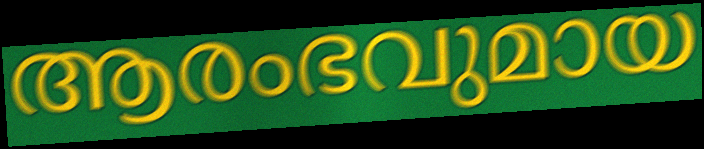
ആരംഭവുമായ